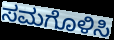
ಸಮಗೊಳಿಸಿ